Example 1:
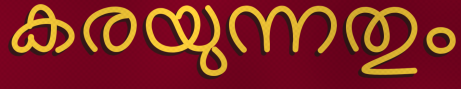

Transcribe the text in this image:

കരയുന്നതും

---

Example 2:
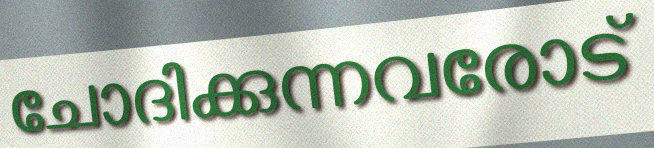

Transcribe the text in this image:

ചോദിക്കുന്നവരോട്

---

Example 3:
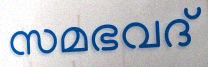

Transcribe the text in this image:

സമഭവദ്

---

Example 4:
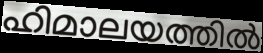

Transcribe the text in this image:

ഹിമാലയത്തിൽ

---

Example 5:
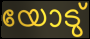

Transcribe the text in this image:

യോടു്